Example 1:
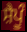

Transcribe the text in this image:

ਸ਼ੈਪੂੰ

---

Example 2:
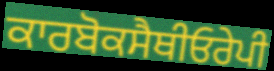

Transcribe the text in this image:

ਕਾਰਬੋਕਸੈਥੀਓਰੇਪੀ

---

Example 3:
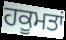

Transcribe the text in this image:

ਹਕੂਮਤਾਂ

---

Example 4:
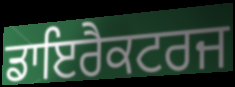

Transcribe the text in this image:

ਡਾਇਰੈਕਟਰਜ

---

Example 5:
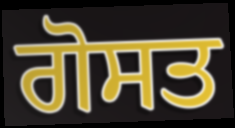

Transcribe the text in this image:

ਗੋਸਤ